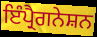
ਇੰਪ੍ਰੈਗਨੇਸ਼ਨ